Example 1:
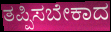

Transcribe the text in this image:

ತಪ್ಪಿಸಬೇಕಾದ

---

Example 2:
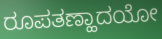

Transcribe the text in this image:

ರೂಪತಣ್ಹಾದಯೋ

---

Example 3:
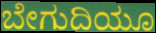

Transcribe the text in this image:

ಬೇಗುದಿಯೂ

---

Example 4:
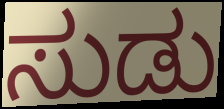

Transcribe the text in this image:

ಸುಡು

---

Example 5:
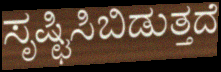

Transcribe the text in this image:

ಸೃಷ್ಟಿಸಿಬಿಡುತ್ತದೆ